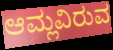
ಆಮ್ಲವಿರುವ